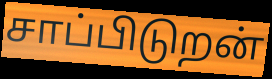
சாப்பிடுறன்